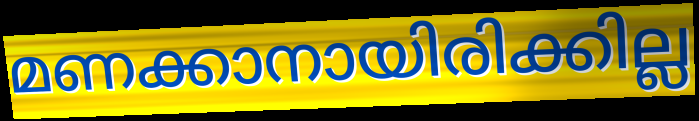
മണക്കാനായിരിക്കില്ല